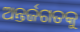
ଅନ୍ତର୍ଜଗତକୁ